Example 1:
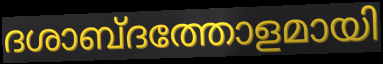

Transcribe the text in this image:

ദശാബ്ദത്തോളമായി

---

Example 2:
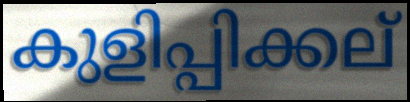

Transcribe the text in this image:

കുളിപ്പിക്കല്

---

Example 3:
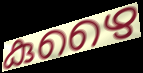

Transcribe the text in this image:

കുഴൈ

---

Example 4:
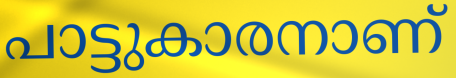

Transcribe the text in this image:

പാട്ടുകാരനാണ്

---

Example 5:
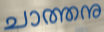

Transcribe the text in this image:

ചാത്തനു